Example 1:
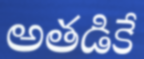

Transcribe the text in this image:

అతడికే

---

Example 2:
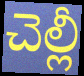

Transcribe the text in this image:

చెల్లీ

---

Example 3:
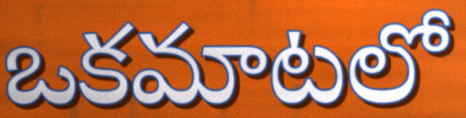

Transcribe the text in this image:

ఒకమాటలో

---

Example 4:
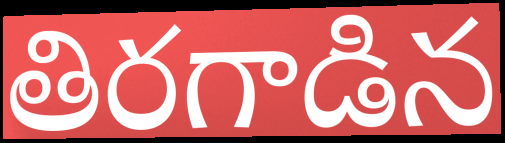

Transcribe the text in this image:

తిరగాడిన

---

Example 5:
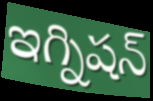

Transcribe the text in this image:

ఇగ్నిషన్